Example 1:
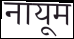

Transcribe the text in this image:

नायूम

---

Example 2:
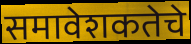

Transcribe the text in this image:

समावेशकतेचे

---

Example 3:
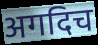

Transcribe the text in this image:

अगदिच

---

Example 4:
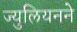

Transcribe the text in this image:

ज्युलियनने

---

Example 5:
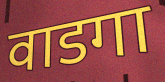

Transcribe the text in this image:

वाडगा